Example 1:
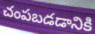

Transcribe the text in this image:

చంపబడడానికి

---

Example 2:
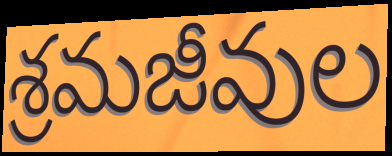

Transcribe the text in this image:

శ్రమజీవుల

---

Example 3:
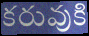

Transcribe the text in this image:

కరువుకి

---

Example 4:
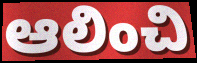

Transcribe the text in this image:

ఆలించి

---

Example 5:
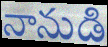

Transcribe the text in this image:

నానుడి